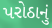
પરોઠાનું